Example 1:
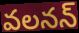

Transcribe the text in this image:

వలనన్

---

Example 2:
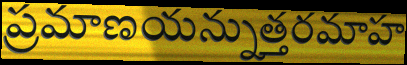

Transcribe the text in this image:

ప్రమాణయన్నుత్తరమాహ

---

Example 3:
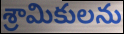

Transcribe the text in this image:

శ్రామికులను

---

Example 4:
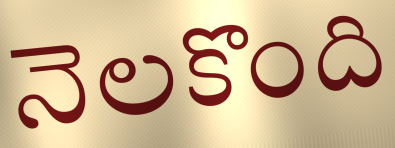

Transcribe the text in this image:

నెలకొంది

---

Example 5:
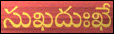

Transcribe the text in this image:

సుఖదుఃఖే